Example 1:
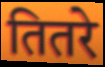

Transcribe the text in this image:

तितरे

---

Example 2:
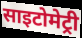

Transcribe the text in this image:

साइटोमेट्री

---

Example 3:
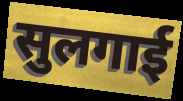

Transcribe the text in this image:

सुलगाई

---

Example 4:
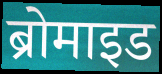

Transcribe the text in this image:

ब्रोमाइड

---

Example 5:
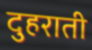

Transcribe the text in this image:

दुहराती